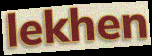
lekhen